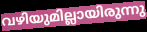
വഴിയുമില്ലായിരുന്നു